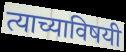
त्याच्याविषयी